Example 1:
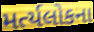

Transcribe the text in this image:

મર્ત્યલોકના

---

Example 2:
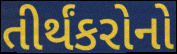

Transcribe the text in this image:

તીર્થંકરોનો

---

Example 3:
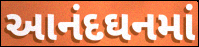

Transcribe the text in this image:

આનંદઘનમાં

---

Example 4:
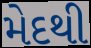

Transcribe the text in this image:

મેદથી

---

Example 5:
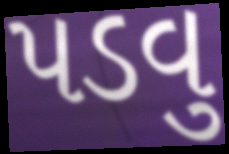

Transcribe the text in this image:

પડવુ